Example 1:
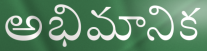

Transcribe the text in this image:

అభిమానిక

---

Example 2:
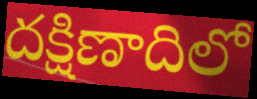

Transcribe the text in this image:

దక్షిణాదిలో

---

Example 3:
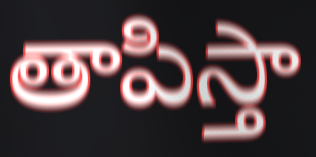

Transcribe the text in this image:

తాపిస్తా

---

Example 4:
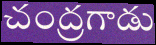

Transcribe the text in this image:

చంద్రగాడు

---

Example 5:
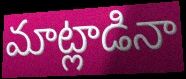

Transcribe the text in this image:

మాట్లాడినా